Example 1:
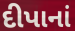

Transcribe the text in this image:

દીપાનાં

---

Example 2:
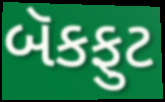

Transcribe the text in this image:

બૅકફુટ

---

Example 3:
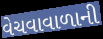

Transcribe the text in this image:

વેચવાવાળાની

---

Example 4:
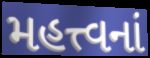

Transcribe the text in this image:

મહત્ત્વનાં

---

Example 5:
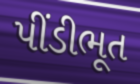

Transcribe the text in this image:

પીંડીભૂત